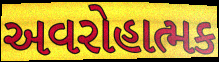
અવરોહાત્મક